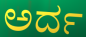
ಅರ್ದ